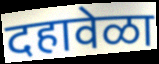
दहावेळा